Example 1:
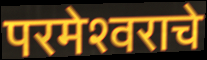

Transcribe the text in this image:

परमेश्वराचे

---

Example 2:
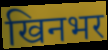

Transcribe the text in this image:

खिनभर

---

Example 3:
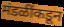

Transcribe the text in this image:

मंडळींकडून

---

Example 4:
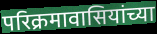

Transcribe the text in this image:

परिक्रमावासियांच्या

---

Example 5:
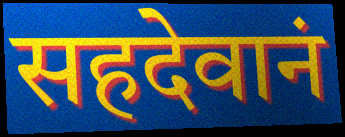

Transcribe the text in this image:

सहदेवानं